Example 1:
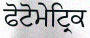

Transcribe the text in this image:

ਫੋਟੋਮੇਟ੍ਰਿਕ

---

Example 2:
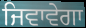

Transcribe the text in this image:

ਜਿਵਾਵੇਗਾ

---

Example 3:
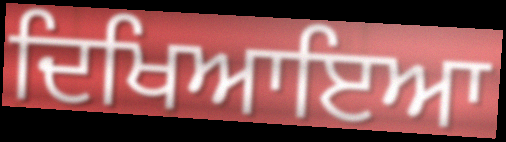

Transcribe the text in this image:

ਦਿਖਿਆਇਆ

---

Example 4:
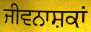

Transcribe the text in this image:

ਜੀਵਨਾਸ਼ਕਾਂ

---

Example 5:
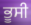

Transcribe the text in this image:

ਭੂਸੀ